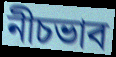
নীচভাব